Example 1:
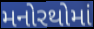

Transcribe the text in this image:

મનોરથોમાં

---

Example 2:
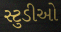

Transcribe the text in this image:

સ્ટુડીઓ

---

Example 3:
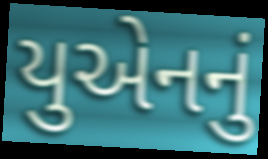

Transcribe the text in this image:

યુએનનું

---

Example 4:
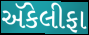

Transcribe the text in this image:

ઍકેલીફા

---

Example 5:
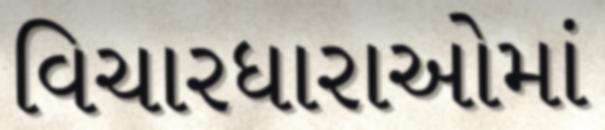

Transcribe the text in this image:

વિચારધારાઓમાં